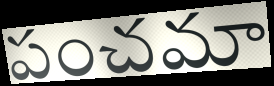
పంచమా